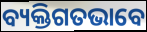
ବ୍ୟକ୍ତିଗତଭାବେ